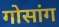
गोसांग